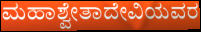
ಮಹಾಶ್ವೇತಾದೇವಿಯವರ